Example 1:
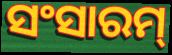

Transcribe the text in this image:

ସଂସାରମ୍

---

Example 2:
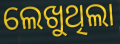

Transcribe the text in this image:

ଲେଖୁଥିଲା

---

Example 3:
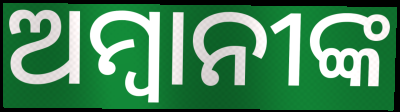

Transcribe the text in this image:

ଅମ୍ବାନୀଙ୍କ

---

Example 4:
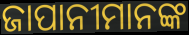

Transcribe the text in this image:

ଜାପାନୀମାନଙ୍କ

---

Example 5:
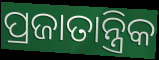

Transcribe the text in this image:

ପ୍ରଜାତାନ୍ତ୍ରିକ